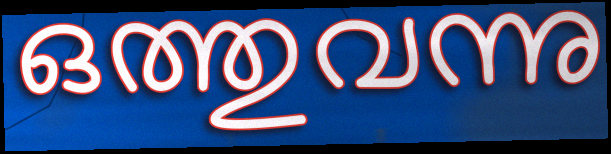
ഒത്തുവന്നു